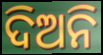
ଦିଅନି